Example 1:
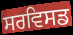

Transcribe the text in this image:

ਸਰਵਿਸਡ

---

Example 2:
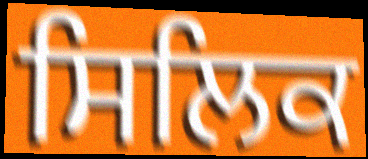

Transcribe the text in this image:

ਸਿਲਿਕ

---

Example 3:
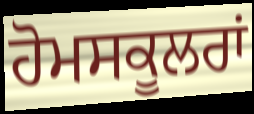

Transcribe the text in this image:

ਹੋਮਸਕੂਲਰਾਂ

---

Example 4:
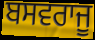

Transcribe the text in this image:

ਬਸਵਰਾਜੂ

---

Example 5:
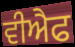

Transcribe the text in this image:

ਵੀਐਫ